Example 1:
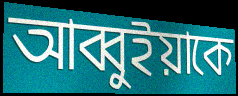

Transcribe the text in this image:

আব্বুইয়াকে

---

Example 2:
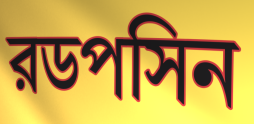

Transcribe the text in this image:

রডপসিন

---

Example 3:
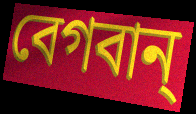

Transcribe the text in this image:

বেগবান্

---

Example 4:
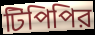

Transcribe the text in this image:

টিপিপির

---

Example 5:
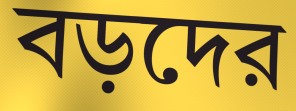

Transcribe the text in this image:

বড়দের